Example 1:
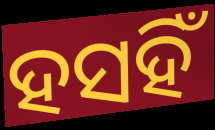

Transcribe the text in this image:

ହସହିଁ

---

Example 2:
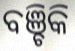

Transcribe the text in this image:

ବଞ୍ଚିକି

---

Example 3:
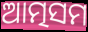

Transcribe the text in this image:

ଆତ୍ମସମ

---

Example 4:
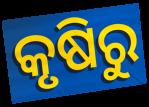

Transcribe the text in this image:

କୃଷିରୁ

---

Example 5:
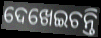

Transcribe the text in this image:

ଦେଖେଇଚନ୍ତି